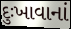
દુઃખાવાનાં